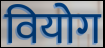
वियोग